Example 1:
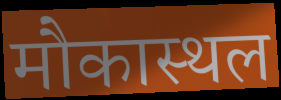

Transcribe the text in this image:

मौकास्थल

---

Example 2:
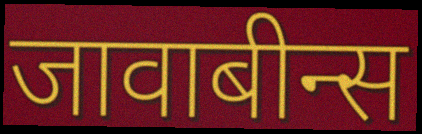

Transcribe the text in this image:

जावाबीन्स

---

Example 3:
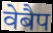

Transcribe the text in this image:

वेबैप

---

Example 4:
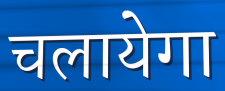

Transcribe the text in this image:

चलायेगा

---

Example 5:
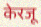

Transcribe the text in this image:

केरजू